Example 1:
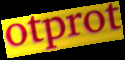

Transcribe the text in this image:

otprot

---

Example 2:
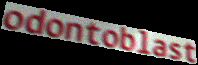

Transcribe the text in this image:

odontoblast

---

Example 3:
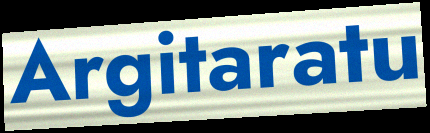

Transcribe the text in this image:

Argitaratu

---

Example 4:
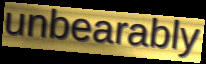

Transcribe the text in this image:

unbearably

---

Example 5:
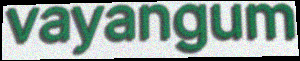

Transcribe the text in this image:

vayangum